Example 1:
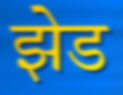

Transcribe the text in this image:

झेड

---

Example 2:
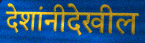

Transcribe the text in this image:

देशांनीदेखील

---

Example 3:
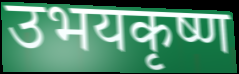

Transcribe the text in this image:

उभयकृष्ण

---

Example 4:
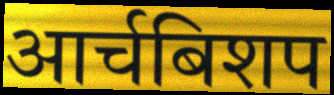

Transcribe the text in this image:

आर्चबिशप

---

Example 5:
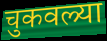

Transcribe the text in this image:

चुकवल्या